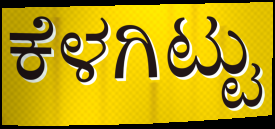
ಕೆಳಗಿಟ್ಟು